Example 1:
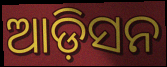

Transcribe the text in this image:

ଆଡ଼ିସନ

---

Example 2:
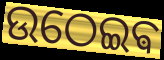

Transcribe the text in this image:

ଉଠେଇଵ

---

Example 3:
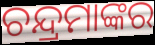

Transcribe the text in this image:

ଚନ୍ଦ୍ରମାଙ୍କର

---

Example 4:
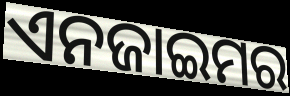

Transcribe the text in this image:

ଏନଜାଇମର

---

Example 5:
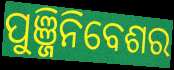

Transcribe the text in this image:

ପୁଞ୍ଜିନିବେଶର